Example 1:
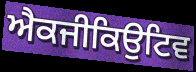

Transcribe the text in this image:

ਐਕਜੀਕਿਉਟਿਵ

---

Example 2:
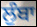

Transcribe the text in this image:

ਲੁੰਬਾ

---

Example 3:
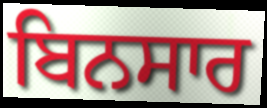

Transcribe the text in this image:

ਬਿਨਸਾਰ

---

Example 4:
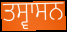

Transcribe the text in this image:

ਤਸ੍ਵਾਸਨ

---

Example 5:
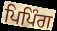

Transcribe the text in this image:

ਪਿਪਿੰਗ